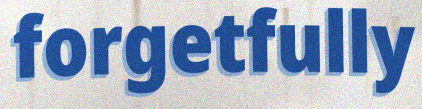
forgetfully